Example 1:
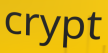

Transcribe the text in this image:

crypt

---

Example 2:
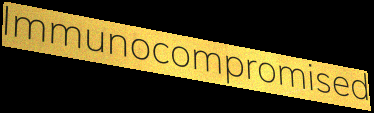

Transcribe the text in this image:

Immunocompromised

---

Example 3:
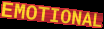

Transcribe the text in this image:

EMOTIONAL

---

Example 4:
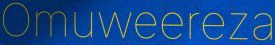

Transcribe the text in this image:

Omuweereza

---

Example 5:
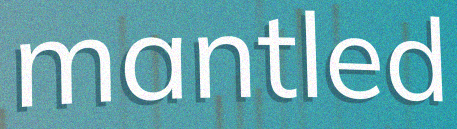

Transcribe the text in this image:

mantled